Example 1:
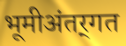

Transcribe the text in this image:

भूमीअंतर्गत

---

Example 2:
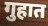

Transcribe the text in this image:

गुहात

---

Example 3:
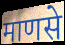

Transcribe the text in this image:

माणसे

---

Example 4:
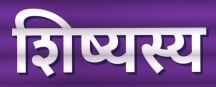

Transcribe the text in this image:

शिष्यस्य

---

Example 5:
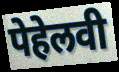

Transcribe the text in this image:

पेहेलवी